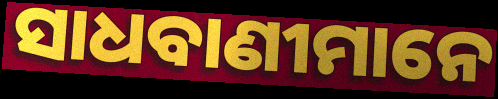
ସାଧବାଣୀମାନେ